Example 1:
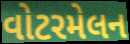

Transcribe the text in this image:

વોટરમેલન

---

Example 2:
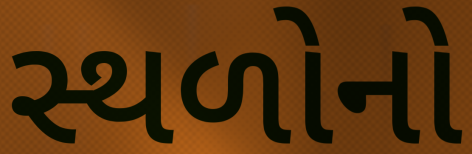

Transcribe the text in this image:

સ્થળોનો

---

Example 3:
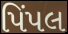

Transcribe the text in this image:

પિંપલ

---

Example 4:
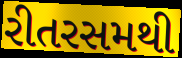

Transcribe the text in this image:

રીતરસમથી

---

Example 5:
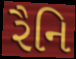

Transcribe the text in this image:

રૈનિ